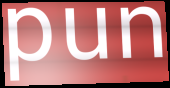
pun